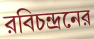
রবিচন্দ্রনের